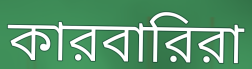
কারবারিরা